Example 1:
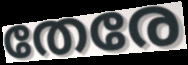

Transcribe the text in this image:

തേരേ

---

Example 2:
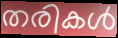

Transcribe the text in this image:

തരികൾ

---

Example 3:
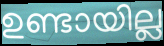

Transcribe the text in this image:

ഉണ്ടായില്ല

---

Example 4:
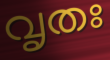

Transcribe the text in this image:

വൃതഃ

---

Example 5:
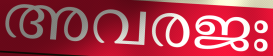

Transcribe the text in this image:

അവരജഃ